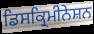
ਡਿਸਕ੍ਰਿਮੀਨੇਸ਼ਨ